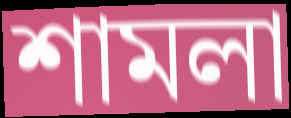
শামলা